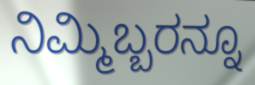
ನಿಮ್ಮಿಬ್ಬರನ್ನೂ